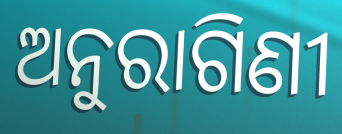
ଅନୁରାଗିଣୀ